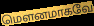
மெளனமாகவே